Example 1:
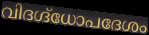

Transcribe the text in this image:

വിദഗ്ദ്ധോപദേശം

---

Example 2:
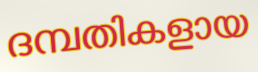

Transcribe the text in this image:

ദമ്പതികളായ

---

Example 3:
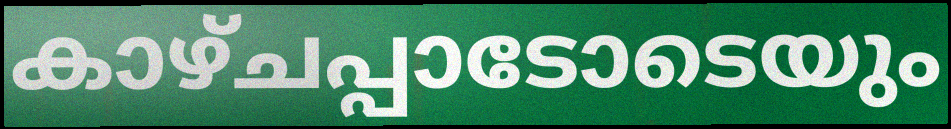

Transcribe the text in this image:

കാഴ്ചപ്പാടോടെയും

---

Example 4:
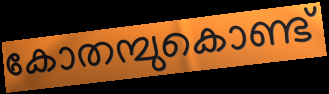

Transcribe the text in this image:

കോതമ്പുകൊണ്ട്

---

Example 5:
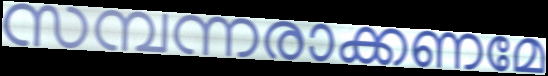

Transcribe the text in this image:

സമ്പന്നരാക്കണമേ